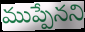
ముప్పేనని